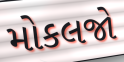
મોકલજો